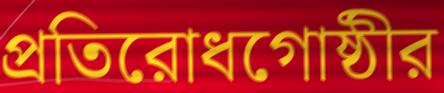
প্রতিরোধগোষ্ঠীর